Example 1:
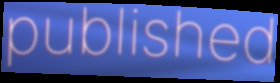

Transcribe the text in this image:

published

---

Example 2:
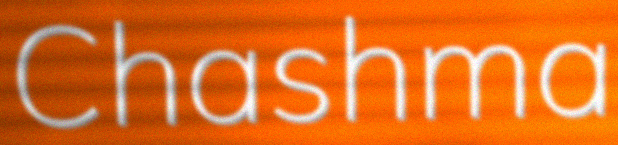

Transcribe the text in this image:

Chashma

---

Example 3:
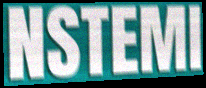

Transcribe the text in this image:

NSTEMI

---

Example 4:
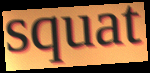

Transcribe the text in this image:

squat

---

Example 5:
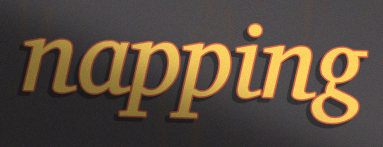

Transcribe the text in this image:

napping